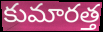
కుమారత్త